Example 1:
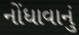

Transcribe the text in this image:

નોંધાવાનું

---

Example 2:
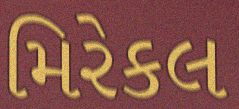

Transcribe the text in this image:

મિરેકલ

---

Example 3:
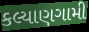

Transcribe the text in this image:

કલ્યાણગામી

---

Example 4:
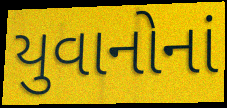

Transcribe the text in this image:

યુવાનોનાં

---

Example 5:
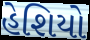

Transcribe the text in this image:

હેશિયો